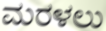
ಮರಳಲು